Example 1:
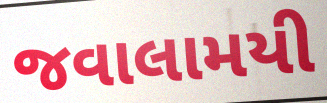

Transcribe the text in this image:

જવાલામયી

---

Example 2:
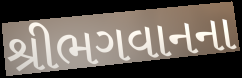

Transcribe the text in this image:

શ્રીભગવાનના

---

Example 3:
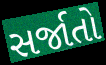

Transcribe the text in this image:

સર્જાતો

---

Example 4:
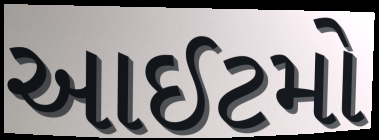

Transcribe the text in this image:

આઈટમો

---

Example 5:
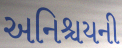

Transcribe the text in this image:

અનિશ્ચયની